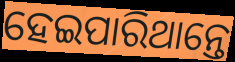
ହେଇପାରିଥାନ୍ତେ